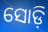
ସୋଡ଼ି